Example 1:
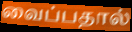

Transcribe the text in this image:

வைப்பதால்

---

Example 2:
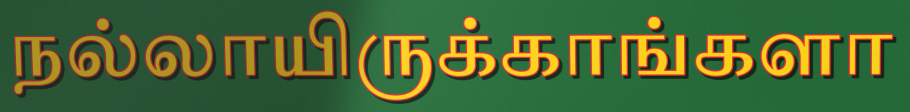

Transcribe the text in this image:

நல்லாயிருக்காங்களா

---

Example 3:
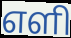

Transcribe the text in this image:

எளி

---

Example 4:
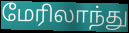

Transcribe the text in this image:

மேரிலாந்து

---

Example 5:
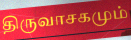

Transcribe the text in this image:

திருவாசகமும்